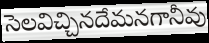
సెలవిచ్చినదేమనగానీవు